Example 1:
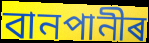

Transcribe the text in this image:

বানপানীৰ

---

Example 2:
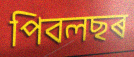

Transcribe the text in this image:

পিবলছৰ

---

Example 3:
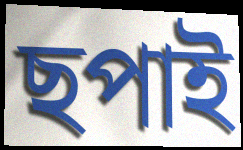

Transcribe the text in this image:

ছপাই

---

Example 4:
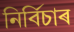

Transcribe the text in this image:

নিৰ্বিচাৰ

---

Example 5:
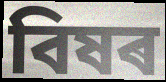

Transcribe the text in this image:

বিষৰ